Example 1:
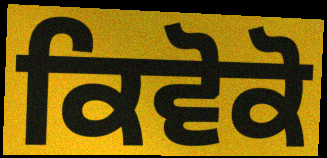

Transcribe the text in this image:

ਕਿਵੋਕੋ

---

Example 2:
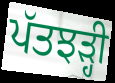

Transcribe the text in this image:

ਪੱਤਝੜ੍ਹੀ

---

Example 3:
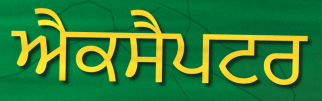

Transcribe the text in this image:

ਐਕਸੈਪਟਰ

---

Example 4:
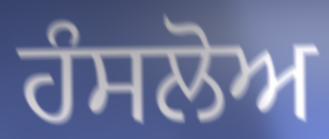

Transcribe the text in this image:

ਹੰਸਲੋਅ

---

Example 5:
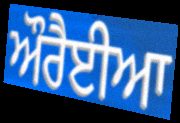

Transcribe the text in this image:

ਔਰੈਈਆ